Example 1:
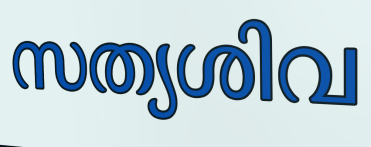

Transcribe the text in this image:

സത്യശിവ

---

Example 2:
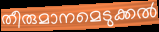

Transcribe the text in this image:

തീരുമാനമെടുക്കൽ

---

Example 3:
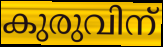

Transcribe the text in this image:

കുരുവിന്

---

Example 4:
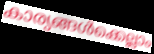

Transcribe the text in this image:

കാര്യങ്ങൾക്കെല്ലാം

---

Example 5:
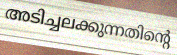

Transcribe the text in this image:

അടിച്ചലക്കുന്നതിന്റെ